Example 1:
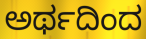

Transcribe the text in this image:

ಅರ್ಥದಿಂದ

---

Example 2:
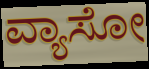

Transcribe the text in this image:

ವ್ಯಾಸೋ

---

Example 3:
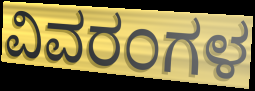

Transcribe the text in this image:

ವಿವರಂಗಳ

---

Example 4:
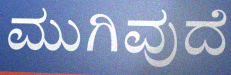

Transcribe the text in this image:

ಮುಗಿವುದೆ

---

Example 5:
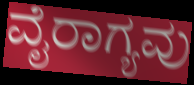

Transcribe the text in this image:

ವೈರಾಗ್ಯವು